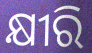
କ୍ଷୀରି